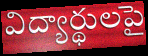
విద్యార్థులపై